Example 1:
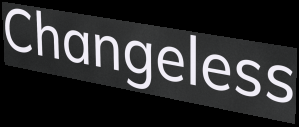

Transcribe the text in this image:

Changeless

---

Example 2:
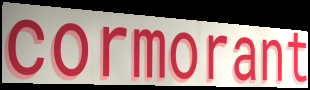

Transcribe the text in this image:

cormorant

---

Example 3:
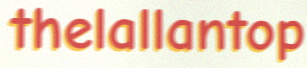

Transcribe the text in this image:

thelallantop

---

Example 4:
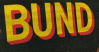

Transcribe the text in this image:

BUND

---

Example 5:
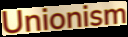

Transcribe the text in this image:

Unionism